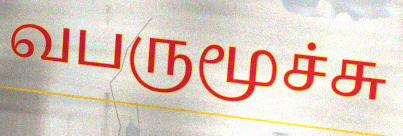
வபருமூச்சு